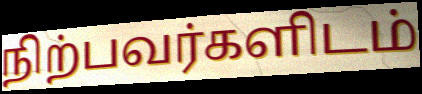
நிற்பவர்களிடம்